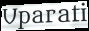
Uparati